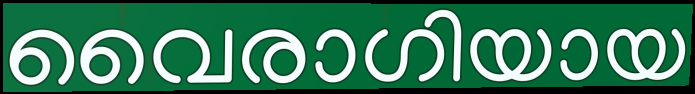
വൈരാഗിയായ